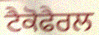
ਟੈਕੋਫੈਰਲ